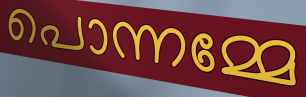
പൊന്നമ്മേ